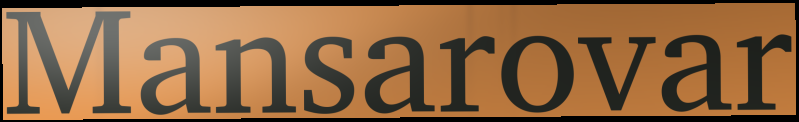
Mansarovar